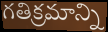
గతిక్రమాన్ని